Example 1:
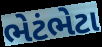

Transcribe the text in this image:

ભેટંભેટા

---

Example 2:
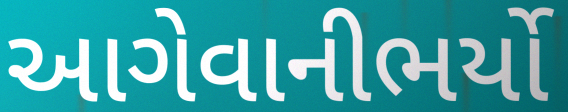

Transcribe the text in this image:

આગેવાનીભર્યો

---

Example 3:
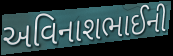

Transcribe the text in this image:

અવિનાશભાઈની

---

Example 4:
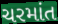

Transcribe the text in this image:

ચરમાંત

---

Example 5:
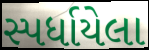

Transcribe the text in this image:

સ્પર્ધાયેલા